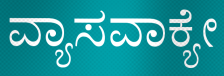
ವ್ಯಾಸವಾಕ್ಯೇ